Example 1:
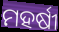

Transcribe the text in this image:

ମହର୍ଷୀ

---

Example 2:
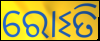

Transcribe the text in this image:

ରୋଽତି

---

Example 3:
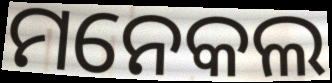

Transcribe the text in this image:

ମନେକଲ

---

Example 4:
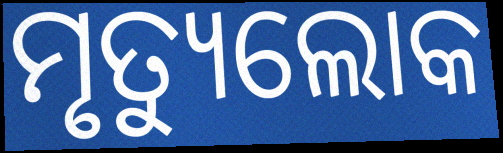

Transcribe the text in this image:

ମୃତ୍ୟୁଲୋକ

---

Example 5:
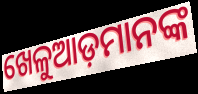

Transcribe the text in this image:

ଖେଳୁଆଡ଼ମାନଙ୍କ